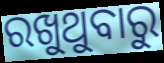
ରଖୁଥୁବାରୁ